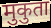
मुकुता